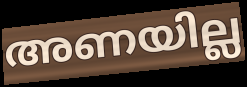
അണയില്ല